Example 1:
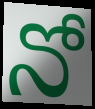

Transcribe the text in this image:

నో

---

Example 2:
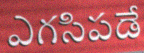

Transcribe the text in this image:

ఎగసిపడే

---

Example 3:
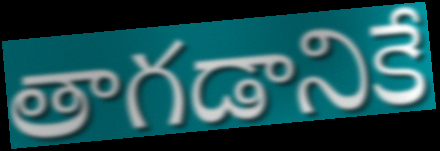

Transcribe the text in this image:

తాగడానికే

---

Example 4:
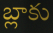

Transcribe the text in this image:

బ్లాకు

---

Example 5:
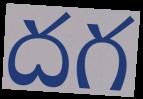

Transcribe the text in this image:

దగ